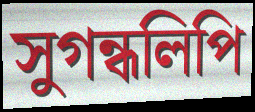
সুগন্ধলিপি